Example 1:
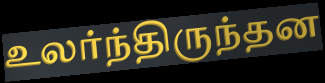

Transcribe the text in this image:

உலர்ந்திருந்தன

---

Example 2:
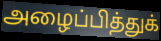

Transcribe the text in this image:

அழைப்பித்துக்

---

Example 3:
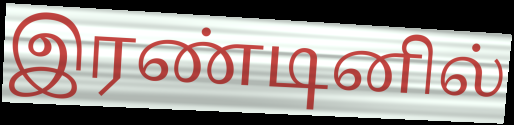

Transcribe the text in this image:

இரண்டினில்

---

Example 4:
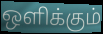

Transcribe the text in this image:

ஒளிக்கும்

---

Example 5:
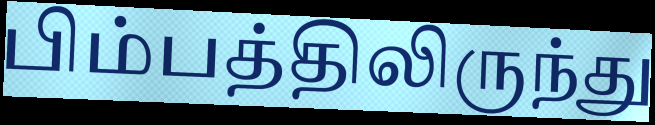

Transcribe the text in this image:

பிம்பத்திலிருந்து